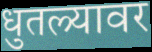
धुतल्यावर